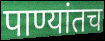
पाण्यांतच